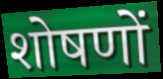
शोषणों